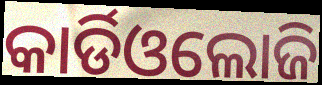
କାର୍ଡିଓଲୋଜି